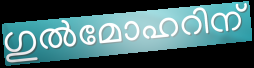
ഗുൽമോഹറിന്